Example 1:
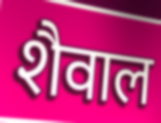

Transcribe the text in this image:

शैवाल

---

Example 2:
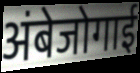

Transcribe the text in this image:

अंबेजोगाई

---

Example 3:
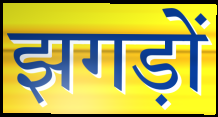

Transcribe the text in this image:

झगड़ों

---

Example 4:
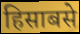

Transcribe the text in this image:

हिसाबसे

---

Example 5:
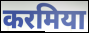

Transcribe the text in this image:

करमिया